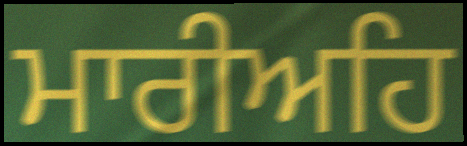
ਮਾਰੀਅਹਿ